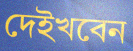
দেইখবেন